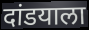
दांडयाला